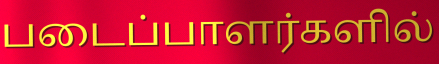
படைப்பாளர்களில்